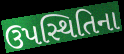
ઉપસ્થિતિના